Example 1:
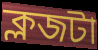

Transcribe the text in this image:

ক্লজটা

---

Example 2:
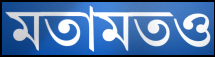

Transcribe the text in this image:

মতামতও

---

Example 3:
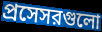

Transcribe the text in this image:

প্রসেসরগুলো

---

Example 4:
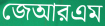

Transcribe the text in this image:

জেআরএম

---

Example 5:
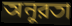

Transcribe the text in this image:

অনুরতা